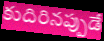
కుదిరినప్పుడే